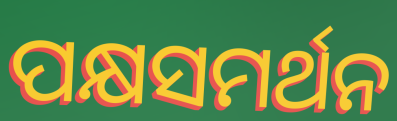
ପକ୍ଷସମର୍ଥନ